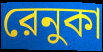
রেনুকা